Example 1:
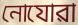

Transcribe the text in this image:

নোযোৱা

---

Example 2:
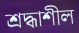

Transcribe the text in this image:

শ্ৰদ্ধাশীল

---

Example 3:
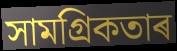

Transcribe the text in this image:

সামগ্ৰিকতাৰ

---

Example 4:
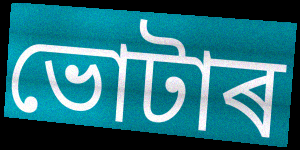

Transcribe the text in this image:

ভোটাৰ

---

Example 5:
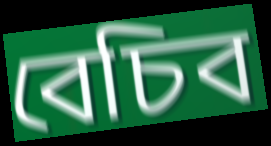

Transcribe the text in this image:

বেচিব